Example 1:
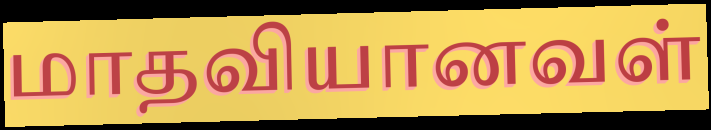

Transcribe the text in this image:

மாதவியானவள்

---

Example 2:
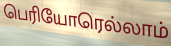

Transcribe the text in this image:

பெரியோரெல்லாம்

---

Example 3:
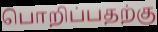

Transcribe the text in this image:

பொறிப்பதற்கு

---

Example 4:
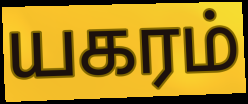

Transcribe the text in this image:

யகரம்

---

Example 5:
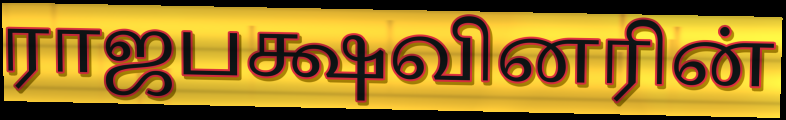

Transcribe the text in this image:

ராஜபக்ஷவினரின்